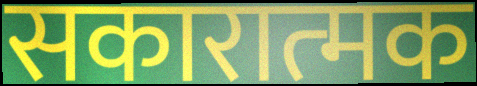
सकारात्‍मक